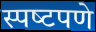
स्‍पष्‍टपणे